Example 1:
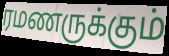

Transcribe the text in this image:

ரமணருக்கும்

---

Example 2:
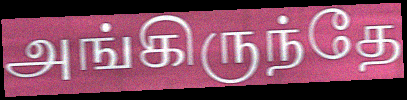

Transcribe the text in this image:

அங்கிருந்தே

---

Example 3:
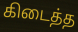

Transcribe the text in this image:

கிடைத்த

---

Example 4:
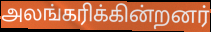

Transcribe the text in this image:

அலங்கரிக்கின்றனர்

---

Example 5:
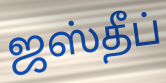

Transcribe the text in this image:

ஜஸ்தீப்